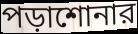
পড়াশোনার